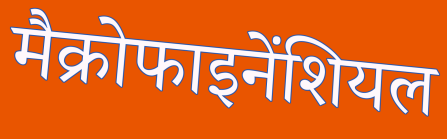
मैक्रोफाइनेंशियल